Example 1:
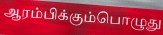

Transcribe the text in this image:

ஆரம்பிக்கும்பொழுது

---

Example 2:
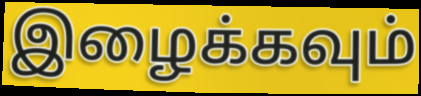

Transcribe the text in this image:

இழைக்கவும்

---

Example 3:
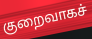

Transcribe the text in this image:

குறைவாகச்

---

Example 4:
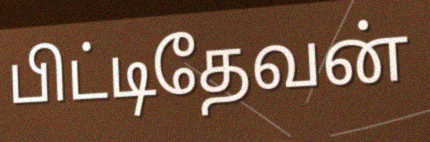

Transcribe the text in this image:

பிட்டிதேவன்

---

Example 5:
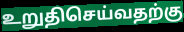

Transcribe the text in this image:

உறுதிசெய்வதற்கு